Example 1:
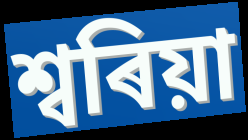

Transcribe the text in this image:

শ্বৰিয়া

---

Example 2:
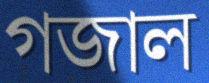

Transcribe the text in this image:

গজাল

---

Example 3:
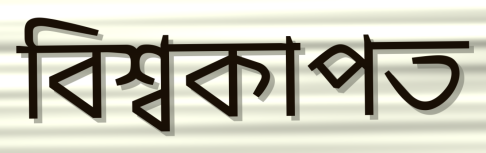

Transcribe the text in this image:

বিশ্বকাপত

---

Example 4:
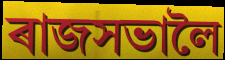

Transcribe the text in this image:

ৰাজসভালৈ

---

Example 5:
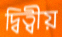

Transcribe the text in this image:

দ্বিত্বীয়